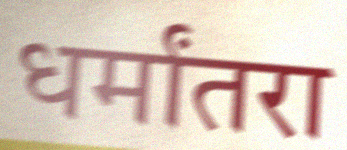
धर्मांतरा